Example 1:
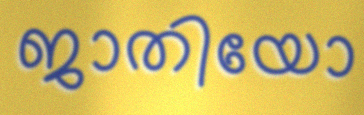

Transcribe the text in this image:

ജാതിയോ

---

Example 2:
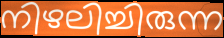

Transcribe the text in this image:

നിഴലിച്ചിരുന്ന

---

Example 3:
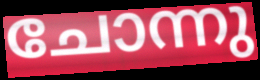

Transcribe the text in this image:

ചോന്നു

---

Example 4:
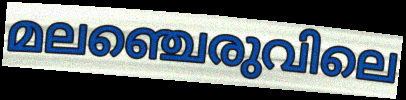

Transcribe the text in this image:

മലഞ്ചെരുവിലെ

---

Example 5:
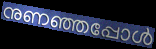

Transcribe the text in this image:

നുണഞ്ഞപ്പോൾ